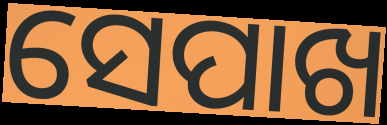
ସେପାଖ